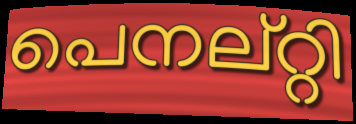
പെനല്റ്റി